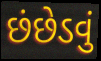
છંછેડવું